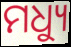
ମଧ୍ୟୁ